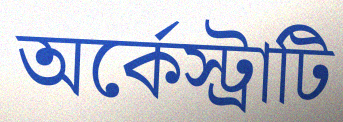
অর্কেস্ট্রাটি